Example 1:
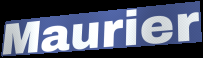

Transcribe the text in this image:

Maurier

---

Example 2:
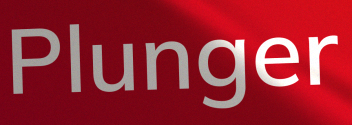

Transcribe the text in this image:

Plunger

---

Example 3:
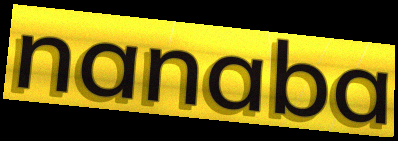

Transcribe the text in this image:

nanaba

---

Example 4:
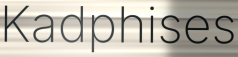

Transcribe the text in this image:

Kadphises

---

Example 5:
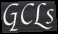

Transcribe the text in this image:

GCLs